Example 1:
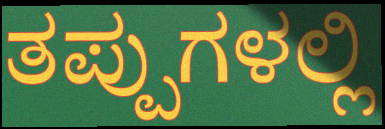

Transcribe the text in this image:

ತಪ್ಪುಗಳಲ್ಲಿ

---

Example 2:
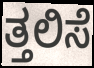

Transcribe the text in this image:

ತ್ತಲಿಸೆ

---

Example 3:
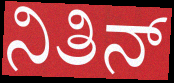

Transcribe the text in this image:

ನಿತಿನ್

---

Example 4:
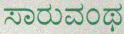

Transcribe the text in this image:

ಸಾರುವಂಥ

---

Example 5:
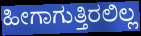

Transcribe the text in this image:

ಹೀಗಾಗುತ್ತಿರಲಿಲ್ಲ